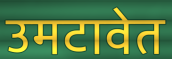
उमटावेत